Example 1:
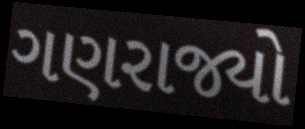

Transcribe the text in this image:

ગણરાજ્યો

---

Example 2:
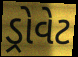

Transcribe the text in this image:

ડ્રોવેટ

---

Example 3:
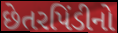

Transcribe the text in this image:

છેતરપિંડીનો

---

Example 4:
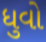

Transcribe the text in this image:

ધુવો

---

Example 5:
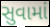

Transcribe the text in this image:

સુવામાં